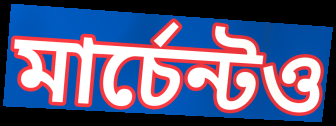
মার্চেন্টও